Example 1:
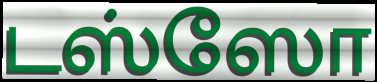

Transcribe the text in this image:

டஸ்ஸோ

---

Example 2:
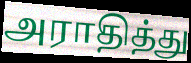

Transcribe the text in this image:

அராதித்து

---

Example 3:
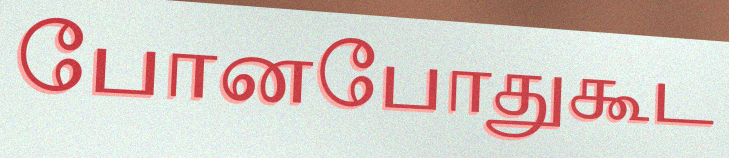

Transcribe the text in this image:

போனபோதுகூட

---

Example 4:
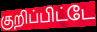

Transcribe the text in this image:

குறிப்பிட்டே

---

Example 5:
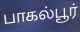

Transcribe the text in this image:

பாகல்பூர்